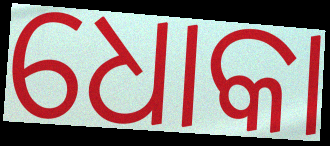
ଧୋକା